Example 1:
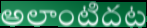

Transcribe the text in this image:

అలాంటిదట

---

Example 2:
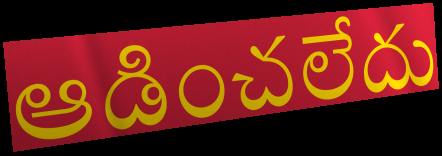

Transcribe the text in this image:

ఆడించలేదు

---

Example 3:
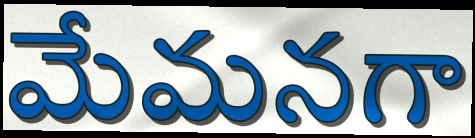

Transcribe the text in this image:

మేమనగా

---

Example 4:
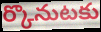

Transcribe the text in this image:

ర్కొనుటకు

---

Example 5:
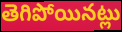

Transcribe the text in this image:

తెగిపోయినట్లు